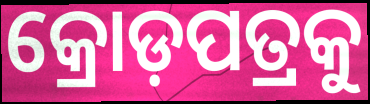
କ୍ରୋଡ଼ପତ୍ରକୁ